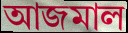
আজমাল